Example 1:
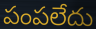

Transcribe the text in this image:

పంపలేదు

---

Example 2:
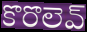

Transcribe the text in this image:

కొరొలెవ్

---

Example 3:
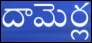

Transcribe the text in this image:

దామెర్ల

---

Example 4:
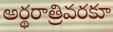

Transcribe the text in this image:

అర్థరాత్రివరకూ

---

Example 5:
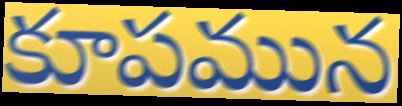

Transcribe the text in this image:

కూపమున